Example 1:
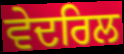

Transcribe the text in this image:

ਵੇਦਰਿਲ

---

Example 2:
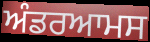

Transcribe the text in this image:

ਅੰਡਰਆਮਸ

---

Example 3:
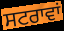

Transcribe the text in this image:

ਸਟਰਾਵਾਂ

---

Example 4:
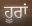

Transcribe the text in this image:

ਹੂਰਾਂ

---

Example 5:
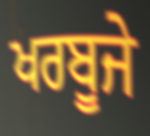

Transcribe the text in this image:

ਖਰਬੂਜੇ